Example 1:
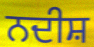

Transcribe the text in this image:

ਨਦੀਸ਼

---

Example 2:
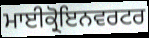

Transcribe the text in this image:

ਮਾਈਕ੍ਰੋਇਨਵਰਟਰ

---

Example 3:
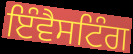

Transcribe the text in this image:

ਇੰਵੈਸਟਿੰਗ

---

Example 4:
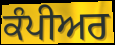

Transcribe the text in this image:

ਕੰਪੀਅਰ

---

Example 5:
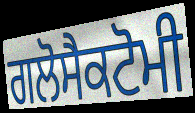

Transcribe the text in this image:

ਗਲੋਸੈਕਟੋਮੀ